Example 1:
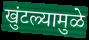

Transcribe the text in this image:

खुंटल्यामुळे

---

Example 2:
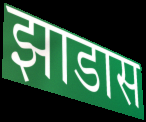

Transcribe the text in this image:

झाडास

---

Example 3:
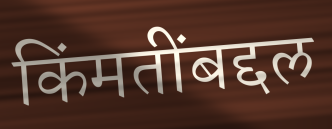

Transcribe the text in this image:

किंमतींबद्दल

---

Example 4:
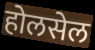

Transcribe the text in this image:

होलसेल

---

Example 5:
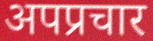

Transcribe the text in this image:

अपप्रचार